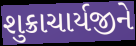
શુક્રાચાર્યજીને